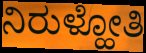
ನಿರುಳ್ಹೋತಿ